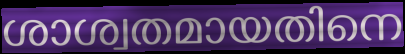
ശാശ്വതമായതിനെ